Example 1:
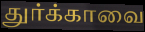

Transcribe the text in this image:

துர்க்காவை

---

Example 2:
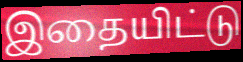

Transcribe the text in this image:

இதையிட்டு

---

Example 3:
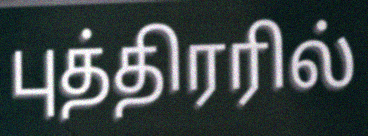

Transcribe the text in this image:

புத்திரரில்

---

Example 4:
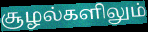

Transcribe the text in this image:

சூழல்களிலும்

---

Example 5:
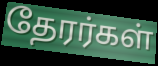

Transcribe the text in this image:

தேரர்கள்